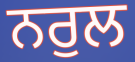
ਨਰੁਲ